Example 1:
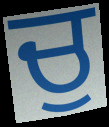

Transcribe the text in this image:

ਚੁ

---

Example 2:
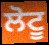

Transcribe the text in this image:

ਲੋਟੂ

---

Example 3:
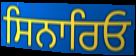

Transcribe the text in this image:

ਸਿਨਾਰਿਓ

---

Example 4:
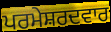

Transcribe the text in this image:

ਪਰਮੇਸ਼ਰਦਵਾਰ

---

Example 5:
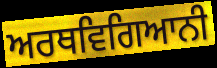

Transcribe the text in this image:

ਅਰਥਵਿਗਿਆਨੀ